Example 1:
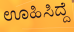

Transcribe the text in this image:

ಊಹಿಸಿದ್ದೆ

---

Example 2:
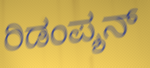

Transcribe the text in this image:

ರಿಡಂಪ್ಶನ್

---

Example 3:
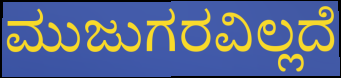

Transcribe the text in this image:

ಮುಜುಗರವಿಲ್ಲದೆ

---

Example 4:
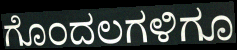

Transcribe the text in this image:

ಗೊಂದಲಗಳಿಗೂ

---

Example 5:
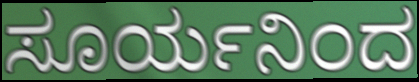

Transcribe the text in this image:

ಸೂರ್ಯನಿಂದ